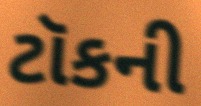
ટૉકની